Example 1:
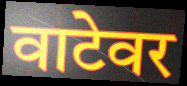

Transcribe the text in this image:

वाटेवर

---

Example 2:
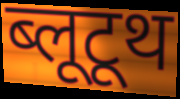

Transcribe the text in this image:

ब्लूटूथ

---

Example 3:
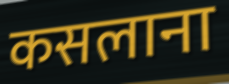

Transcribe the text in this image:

कसलाना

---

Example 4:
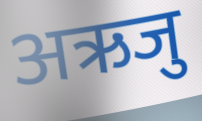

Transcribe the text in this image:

अऋजु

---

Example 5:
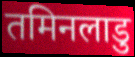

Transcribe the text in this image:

तमिनलाडु